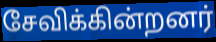
சேவிக்கின்றனர்